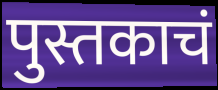
पुस्तकाचं